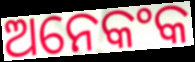
ଅନେକଂକ